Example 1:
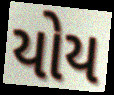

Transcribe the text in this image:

યોય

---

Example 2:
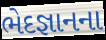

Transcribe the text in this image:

ભેદજ્ઞાનના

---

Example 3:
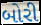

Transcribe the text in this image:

બોરી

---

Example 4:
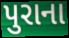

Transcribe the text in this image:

પુરાના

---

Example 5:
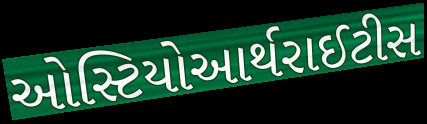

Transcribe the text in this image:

ઓસ્ટિયોઆર્થરાઈટીસ